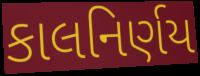
કાલનિર્ણય